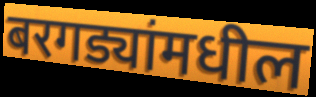
बरगड्यांमधील